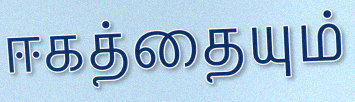
ஈகத்தையும்